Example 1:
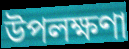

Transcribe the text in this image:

উপলক্ষণা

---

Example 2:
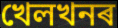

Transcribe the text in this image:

খেলখনৰ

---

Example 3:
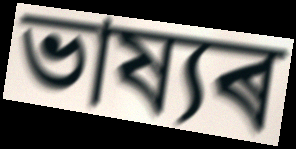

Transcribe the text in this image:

ভাষ্যৰ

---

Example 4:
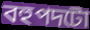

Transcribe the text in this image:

বহুপদটো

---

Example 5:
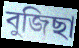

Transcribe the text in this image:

বুজিছা